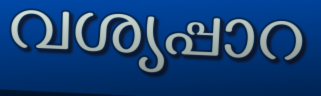
വശ്യപ്പാറ